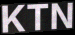
KTN